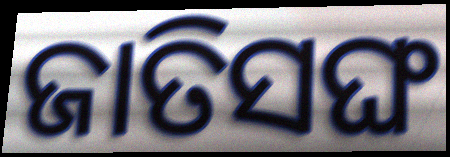
ଜାତିସଙ୍ଘ